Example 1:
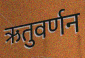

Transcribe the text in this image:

ऋतुवर्णन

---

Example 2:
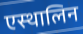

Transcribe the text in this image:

एस्थालिन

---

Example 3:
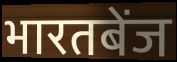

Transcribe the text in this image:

भारतबेंज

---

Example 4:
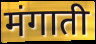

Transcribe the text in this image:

मंगाती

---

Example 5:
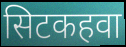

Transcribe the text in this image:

सिटकहवा